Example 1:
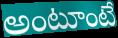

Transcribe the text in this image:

అంటూంటే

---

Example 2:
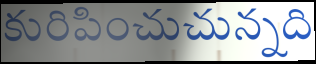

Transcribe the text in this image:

కురిపించుచున్నది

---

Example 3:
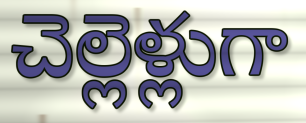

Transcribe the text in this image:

చెల్లెళ్లుగా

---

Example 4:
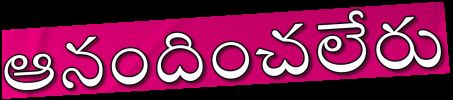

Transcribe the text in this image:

ఆనందించలేరు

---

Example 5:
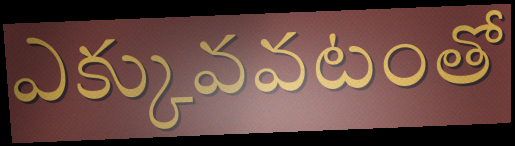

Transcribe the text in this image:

ఎక్కువవటంతో